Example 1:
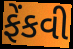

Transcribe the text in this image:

ફેંકવી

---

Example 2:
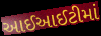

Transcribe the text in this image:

આઈઆઈટીમાં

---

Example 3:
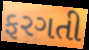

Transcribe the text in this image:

ફરગતી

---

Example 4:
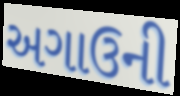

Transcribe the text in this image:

અગાઉની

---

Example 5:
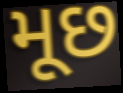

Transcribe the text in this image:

મૂછ